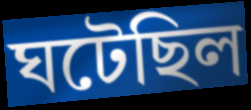
ঘটেছিল